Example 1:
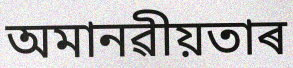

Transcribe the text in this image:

অমানৱীয়তাৰ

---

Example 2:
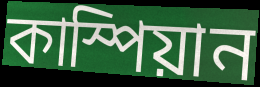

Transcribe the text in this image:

কাস্পিয়ান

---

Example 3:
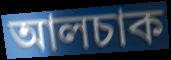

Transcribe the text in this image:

আলচাক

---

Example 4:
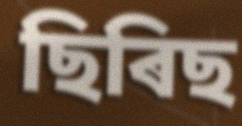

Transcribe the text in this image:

ছিৰিছ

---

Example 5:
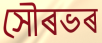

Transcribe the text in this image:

সৌৰভৰ